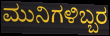
ಮುನಿಗಳಿಬ್ಬರ